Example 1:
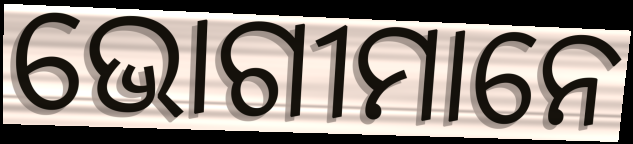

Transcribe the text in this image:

ଭୋଗୀମାନେ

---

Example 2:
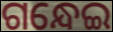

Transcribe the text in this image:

ଗନ୍ଧେଇ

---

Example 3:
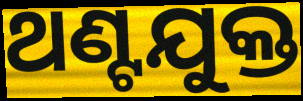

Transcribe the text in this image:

ଥଣ୍ଟଯୁକ୍ତ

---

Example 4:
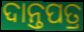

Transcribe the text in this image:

ଦାନ୍ତପତ୍ର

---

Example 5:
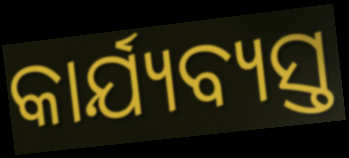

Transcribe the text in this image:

କାର୍ଯ୍ୟବ୍ୟସ୍ତ